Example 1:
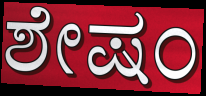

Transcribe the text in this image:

ಶೇಷಂ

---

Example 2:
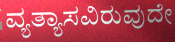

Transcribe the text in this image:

ವ್ಯತ್ಯಾಸವಿರುವುದೇ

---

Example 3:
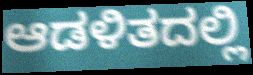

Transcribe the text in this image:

ಆಡಳಿತದಲ್ಲಿ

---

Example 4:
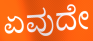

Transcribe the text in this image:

ಏವುದೇ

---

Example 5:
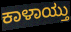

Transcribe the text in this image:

ಕಾಳಾಯ್ತು